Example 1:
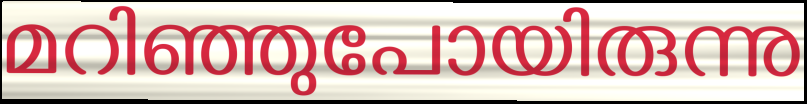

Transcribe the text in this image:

മറിഞ്ഞുപോയിരുന്നു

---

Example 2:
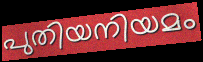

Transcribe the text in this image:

പുതിയനിയമം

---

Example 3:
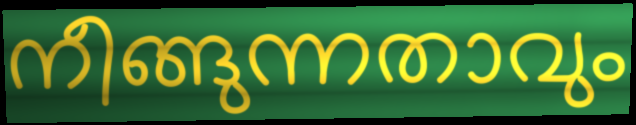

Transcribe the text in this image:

നീങ്ങുന്നതാവും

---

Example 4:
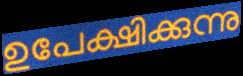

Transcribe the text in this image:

ഉപേക്ഷിക്കുന്നു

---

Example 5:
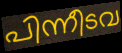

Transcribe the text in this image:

പിന്നീടവ